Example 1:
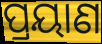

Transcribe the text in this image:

ପ୍ରୟାଣ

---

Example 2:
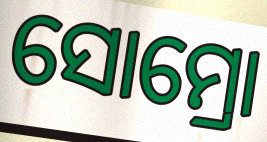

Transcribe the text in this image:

ସୋମ୍ରୋ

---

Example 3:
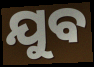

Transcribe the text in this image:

ଯୁବ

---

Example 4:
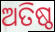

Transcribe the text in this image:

ଅତିଷ୍ଠ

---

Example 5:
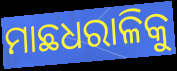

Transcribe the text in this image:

ମାଛଧରାଳିକୁ